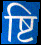
ष्टि